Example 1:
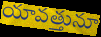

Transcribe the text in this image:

యావత్తునూ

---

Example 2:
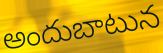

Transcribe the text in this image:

అందుబాటున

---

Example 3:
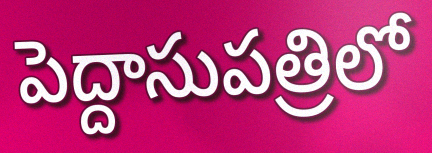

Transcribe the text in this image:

పెద్దాసుపత్రిలో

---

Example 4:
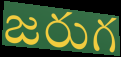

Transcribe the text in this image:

జరుగ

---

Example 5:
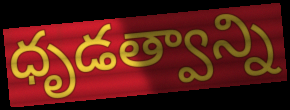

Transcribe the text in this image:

ధృడత్వాన్ని